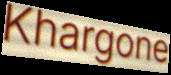
Khargone